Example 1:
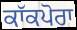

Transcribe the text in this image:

ਕਾੱਕਪੋਰਾ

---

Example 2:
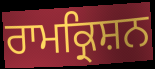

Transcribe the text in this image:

ਰਾਮਕ੍ਰਿਸ਼ਨ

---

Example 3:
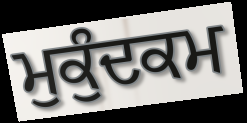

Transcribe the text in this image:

ਮੁਕੁੰਦਕਮ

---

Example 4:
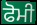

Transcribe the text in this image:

ਫੋਮੀ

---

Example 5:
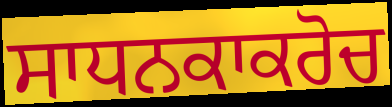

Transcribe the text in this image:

ਸਾਧਨਕਾਕਰੋਚ